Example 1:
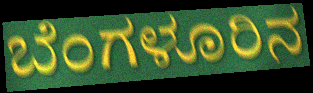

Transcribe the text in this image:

ಬೆಂಗಳೂರಿನ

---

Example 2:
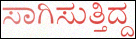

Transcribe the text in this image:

ಸಾಗಿಸುತ್ತಿದ್ದ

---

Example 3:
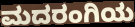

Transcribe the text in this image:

ಮದರಂಗಿಯ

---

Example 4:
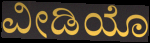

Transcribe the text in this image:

ವೀಡಿಯೊ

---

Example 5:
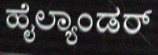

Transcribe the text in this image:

ಹೈಲ್ಯಾಂಡರ್